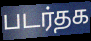
படர்தக